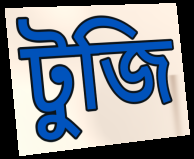
টুজি